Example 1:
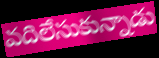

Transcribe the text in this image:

వదిలేసుకున్నాడు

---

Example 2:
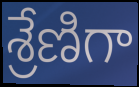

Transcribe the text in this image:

శ్రేణిగా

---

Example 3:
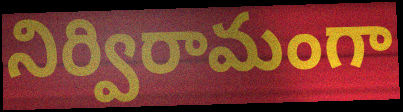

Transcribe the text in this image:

నిర్విరామంగా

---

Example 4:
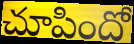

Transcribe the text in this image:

చూపిందో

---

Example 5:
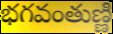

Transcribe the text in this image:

భగవంతుణ్ణి